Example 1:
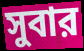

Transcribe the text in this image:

সুবার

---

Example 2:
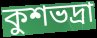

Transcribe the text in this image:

কুশভদ্রা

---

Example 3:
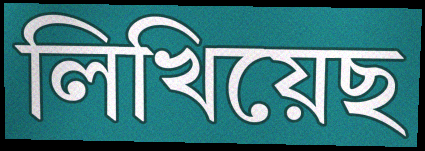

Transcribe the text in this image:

লিখিয়েছ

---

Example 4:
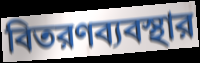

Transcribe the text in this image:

বিতরণব্যবস্থার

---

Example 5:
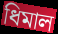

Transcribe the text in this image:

ধিমাল